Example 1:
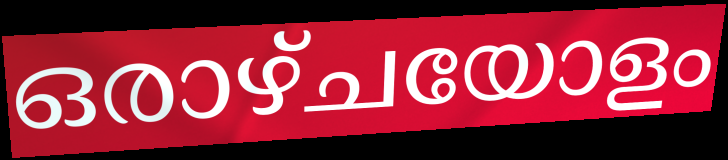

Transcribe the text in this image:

ഒരാഴ്ചയോളം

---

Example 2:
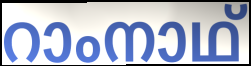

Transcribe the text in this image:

റാംനാഥ്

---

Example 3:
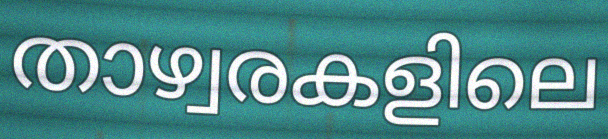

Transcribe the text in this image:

താഴ്വരകളിലെ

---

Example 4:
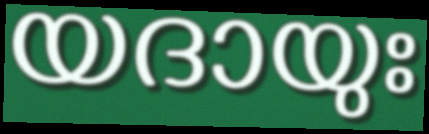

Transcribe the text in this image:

യദായുഃ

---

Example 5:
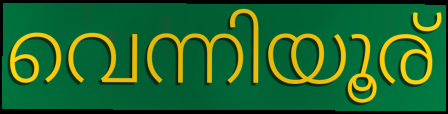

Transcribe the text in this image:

വെന്നിയൂര്